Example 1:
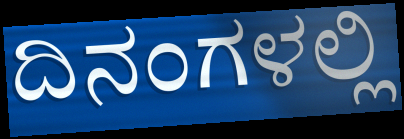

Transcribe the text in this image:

ದಿನಂಗಳಲ್ಲಿ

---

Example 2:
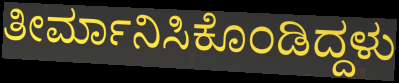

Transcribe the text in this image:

ತೀರ್ಮಾನಿಸಿಕೊಂಡಿದ್ದಳು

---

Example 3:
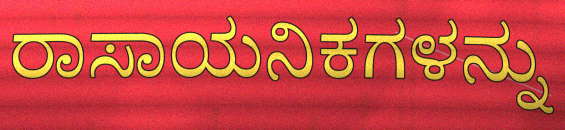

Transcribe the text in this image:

ರಾಸಾಯನಿಕಗಳನ್ನು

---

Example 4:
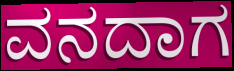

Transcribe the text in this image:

ವನದಾಗ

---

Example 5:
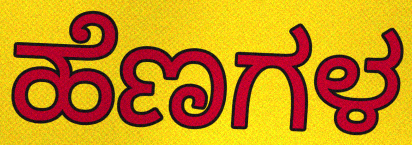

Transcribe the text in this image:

ಹೆಣಗಳ